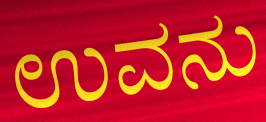
ಉವನು